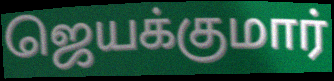
ஜெயக்குமார்